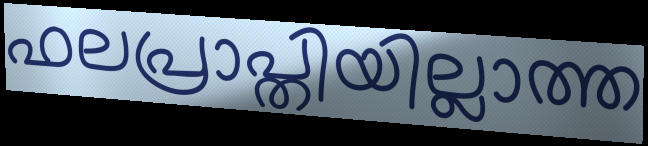
ഫലപ്രാപ്തിയില്ലാത്ത